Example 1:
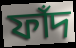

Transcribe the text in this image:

ফাঁদ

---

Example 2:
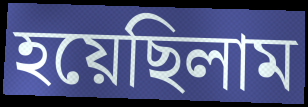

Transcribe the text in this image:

হয়েছিলাম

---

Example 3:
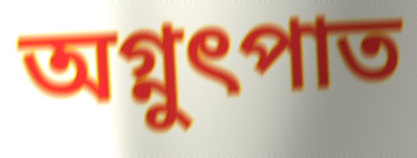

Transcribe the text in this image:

অগ্নুৎপাত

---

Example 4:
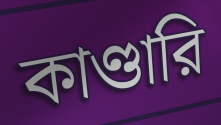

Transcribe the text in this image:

কাণ্ডারি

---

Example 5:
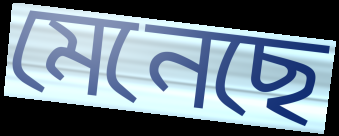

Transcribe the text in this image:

মেনেছে